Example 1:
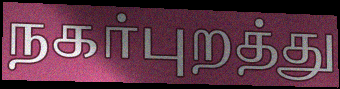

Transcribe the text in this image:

நகர்புறத்து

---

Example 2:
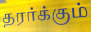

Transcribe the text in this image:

தரர்க்கும்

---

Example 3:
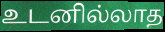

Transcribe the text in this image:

உடனில்லாத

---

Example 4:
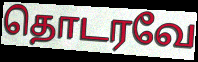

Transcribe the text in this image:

தொடரவே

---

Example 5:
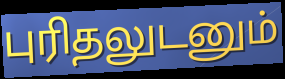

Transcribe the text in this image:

புரிதலுடனும்